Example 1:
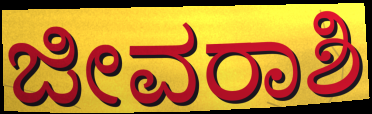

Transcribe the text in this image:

ಜೀವರಾಶಿ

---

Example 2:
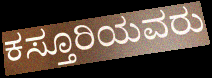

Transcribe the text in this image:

ಕಸ್ತೂರಿಯವರು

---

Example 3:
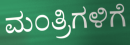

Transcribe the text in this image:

ಮಂತ್ರಿಗಳಿಗೆ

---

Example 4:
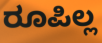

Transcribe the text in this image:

ರೂಪಿಲ್ಲ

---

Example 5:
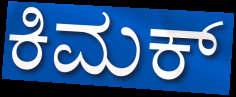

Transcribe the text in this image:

ಕಿಮಕ್